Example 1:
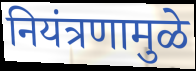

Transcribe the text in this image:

नियंत्रणामुळे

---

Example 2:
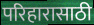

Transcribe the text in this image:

परिहारासाठी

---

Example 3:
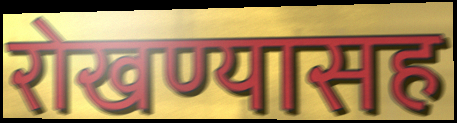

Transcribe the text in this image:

रोखण्यासह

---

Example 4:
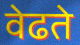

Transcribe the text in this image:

वेढते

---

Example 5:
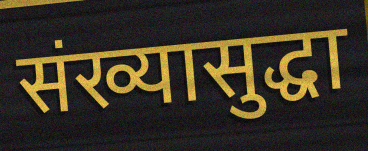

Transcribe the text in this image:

संख्यासुद्धा